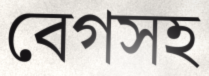
বেগসহ